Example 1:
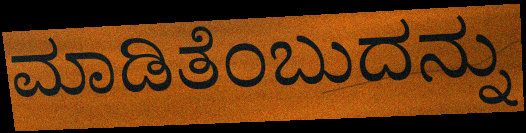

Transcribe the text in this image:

ಮಾಡಿತೆಂಬುದನ್ನು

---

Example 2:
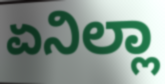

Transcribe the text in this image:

ಏನಿಲ್ಲಾ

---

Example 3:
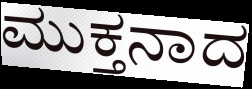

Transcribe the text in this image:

ಮುಕ್ತನಾದ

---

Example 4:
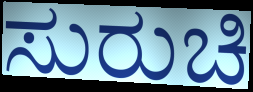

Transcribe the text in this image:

ಸುರುಚಿ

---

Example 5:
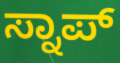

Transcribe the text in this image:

ಸ್ನಾಪ್